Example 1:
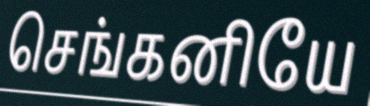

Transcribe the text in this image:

செங்கனியே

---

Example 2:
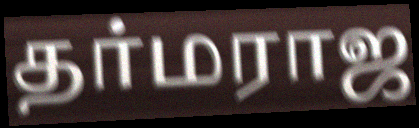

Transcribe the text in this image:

தர்மராஜ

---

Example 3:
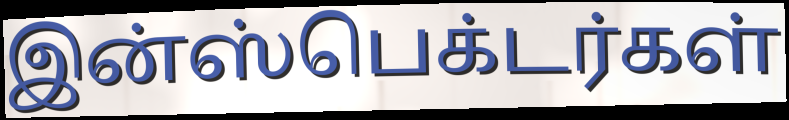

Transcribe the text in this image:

இன்ஸ்பெக்டர்கள்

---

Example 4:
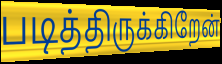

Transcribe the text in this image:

படித்திருக்கிறேன்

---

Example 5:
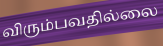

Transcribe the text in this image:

விரும்பவதில்லை